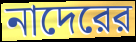
নাদেরের